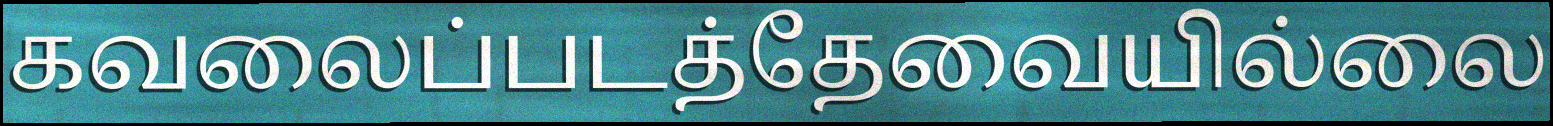
கவலைப்படத்தேவையில்லை